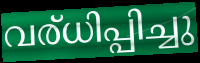
വര്ധിപ്പിച്ചു